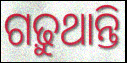
ଗଢ଼ୁଥାନ୍ତି